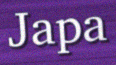
Japa